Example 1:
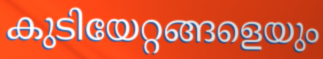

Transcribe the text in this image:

കുടിയേറ്റങ്ങളെയും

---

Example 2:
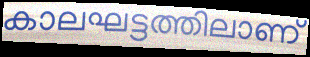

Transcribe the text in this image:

കാലഘട്ടത്തിലാണ്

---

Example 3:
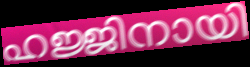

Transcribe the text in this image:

ഹജ്ജിനായി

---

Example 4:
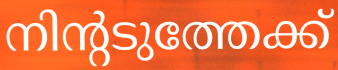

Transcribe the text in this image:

നിന്റടുത്തേക്ക്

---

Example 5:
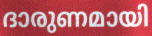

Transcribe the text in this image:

ദാരുണമായി